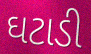
ઘટાડી